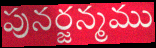
పునర్జన్మము